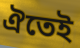
ঐতেই